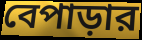
বেপাড়ার